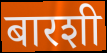
बारशी